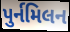
પુર્નમિલન